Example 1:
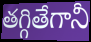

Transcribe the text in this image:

తగ్గితేగానీ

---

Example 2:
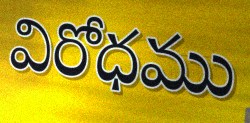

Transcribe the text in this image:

విరోధము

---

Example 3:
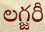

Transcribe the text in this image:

లగ్జరీ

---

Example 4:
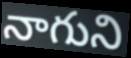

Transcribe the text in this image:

నాగుని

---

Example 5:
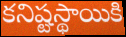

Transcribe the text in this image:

కనిష్టస్థాయికి